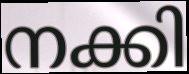
നക്കി